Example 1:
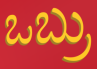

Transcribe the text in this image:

ಒಬ್ರು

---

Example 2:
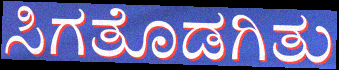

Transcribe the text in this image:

ಸಿಗತೊಡಗಿತು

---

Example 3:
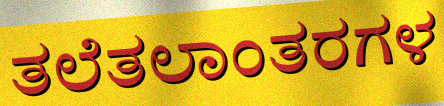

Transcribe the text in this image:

ತಲೆತಲಾಂತರಗಳ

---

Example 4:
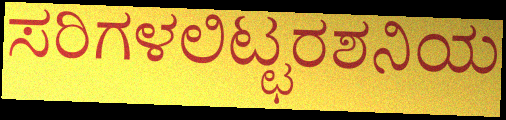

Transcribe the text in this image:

ಸರಿಗಳಲಿಟ್ಟರಶನಿಯ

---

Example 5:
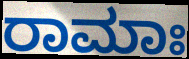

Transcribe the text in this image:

ರಾಮಾಃ